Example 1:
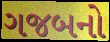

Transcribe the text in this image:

ગજબનો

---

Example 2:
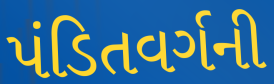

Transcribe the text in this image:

પંડિતવર્ગની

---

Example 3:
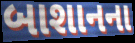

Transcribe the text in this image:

બાશાનના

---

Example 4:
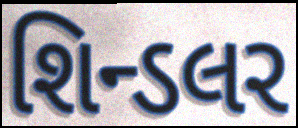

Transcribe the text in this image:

શિન્ડલર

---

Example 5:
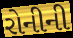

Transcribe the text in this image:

રોનીની